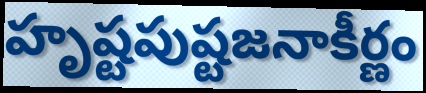
హృష్టపుష్టజనాకీర్ణం